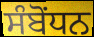
ਸੰਬੋੰਧਨ